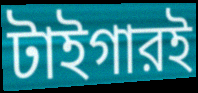
টাইগারই